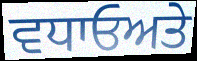
ਵਧਾਓਅਤੇ